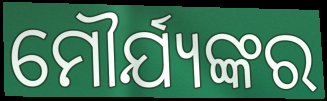
ମୌର୍ଯ୍ୟଙ୍କର